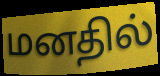
மனதில்